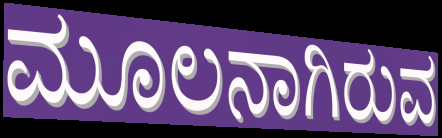
ಮೂಲನಾಗಿರುವ